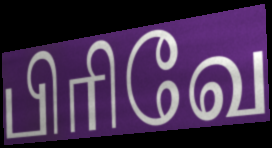
பிரிவே